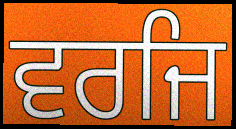
ਵਰਜਿ